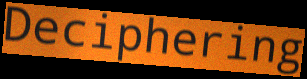
Deciphering